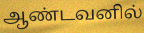
ஆண்டவனில்